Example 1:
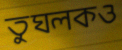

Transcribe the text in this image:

তুঘলকও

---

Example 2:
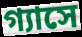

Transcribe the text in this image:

গ্যাসে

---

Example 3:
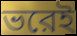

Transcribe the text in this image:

ভরেই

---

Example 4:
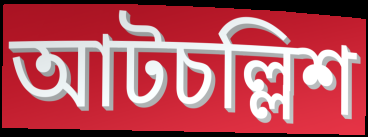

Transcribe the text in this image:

আটচল্লিশ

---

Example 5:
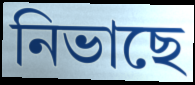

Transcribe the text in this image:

নিভাছে